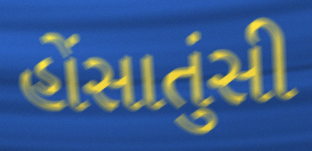
હોંસાતુંસી